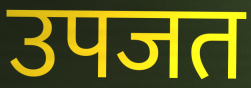
उपजत